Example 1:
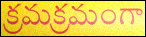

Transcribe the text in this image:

క్రమక్రమంగా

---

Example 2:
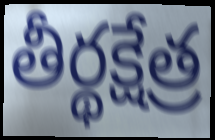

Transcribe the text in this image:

తీర్థక్షేత్ర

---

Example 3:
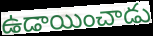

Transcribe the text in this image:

ఉడాయించాడు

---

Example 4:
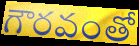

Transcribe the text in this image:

గౌరవంతో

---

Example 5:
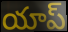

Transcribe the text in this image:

యాప్